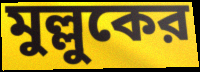
মুল্লুকের